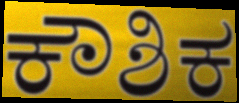
ಕೌಶಿಕ